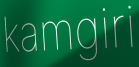
kamgiri